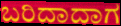
ಬರಿದಾದಾಗ